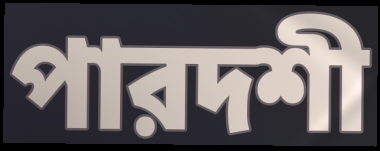
পারদশী